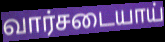
வார்சடையாய்